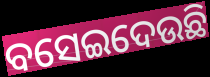
ବସେଇଦେଉଛି